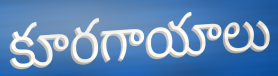
కూరగాయాలు